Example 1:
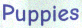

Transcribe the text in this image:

Puppies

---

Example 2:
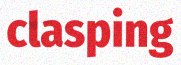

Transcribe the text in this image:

clasping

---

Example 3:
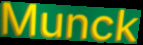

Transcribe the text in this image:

Munck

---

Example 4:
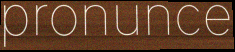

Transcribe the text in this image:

pronunce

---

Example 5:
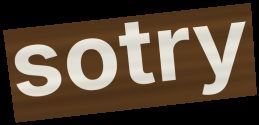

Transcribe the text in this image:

sotry